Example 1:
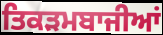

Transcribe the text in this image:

ਤਿਕੜਮਬਾਜੀਆਂ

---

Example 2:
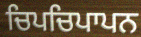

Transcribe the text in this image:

ਚਿਪਚਿਪਾਪਨ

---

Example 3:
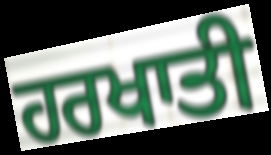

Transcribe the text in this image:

ਹਰਖਾਤੀ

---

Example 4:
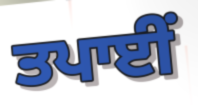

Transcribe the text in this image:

ਤਪਾਈਂ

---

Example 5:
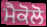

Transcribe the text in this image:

ਮੈਕੋਲੋ